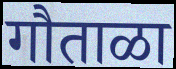
गौताळा